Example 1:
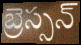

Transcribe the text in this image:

బ్రెస్సన్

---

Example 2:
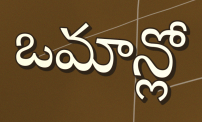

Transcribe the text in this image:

ఒమాన్లో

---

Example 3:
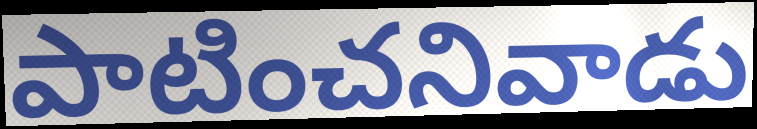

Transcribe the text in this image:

పాటించనివాడు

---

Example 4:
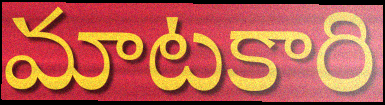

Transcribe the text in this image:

మాటకారి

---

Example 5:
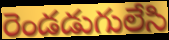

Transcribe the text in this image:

రెండడుగులేసి